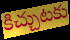
కిచ్చుటకు